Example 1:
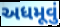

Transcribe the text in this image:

અધમૂવું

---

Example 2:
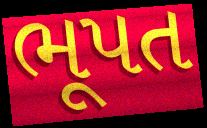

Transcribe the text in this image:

ભૂપત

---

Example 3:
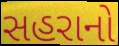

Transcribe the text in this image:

સહરાનો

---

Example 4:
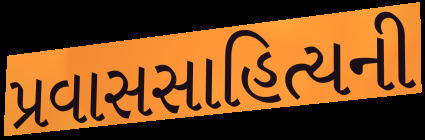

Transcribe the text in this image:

પ્રવાસસાહિત્યની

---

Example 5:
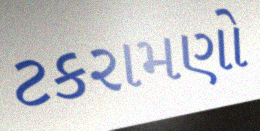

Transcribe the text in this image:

ટકરામણો